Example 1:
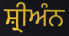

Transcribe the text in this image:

ਸ਼੍ਰੀਅੰਨ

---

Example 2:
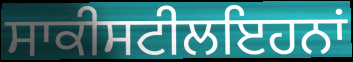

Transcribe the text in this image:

ਸਾਕੀਸਟੀਲਇਹਨਾਂ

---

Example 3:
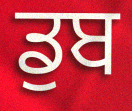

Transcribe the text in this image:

ਡੁਬ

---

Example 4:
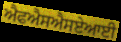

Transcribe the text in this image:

ਐਫਐਸਐਸਏਆਈ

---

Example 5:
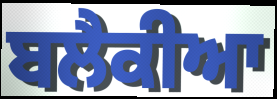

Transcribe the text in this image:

ਬਲੈਕੀਆ